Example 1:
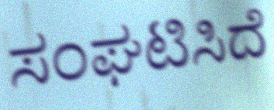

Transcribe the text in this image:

ಸಂಘಟಿಸಿದೆ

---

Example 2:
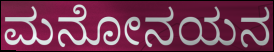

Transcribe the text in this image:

ಮನೋನಯನ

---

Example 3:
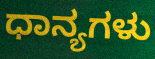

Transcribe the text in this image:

ಧಾನ್ಯಗಳು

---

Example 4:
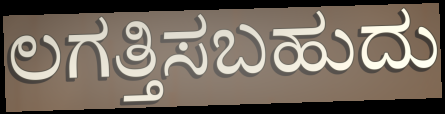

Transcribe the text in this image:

ಲಗತ್ತಿಸಬಹುದು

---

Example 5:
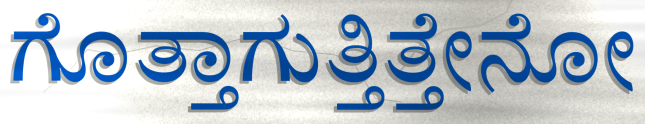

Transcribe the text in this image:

ಗೊತ್ತಾಗುತ್ತಿತ್ತೇನೋ